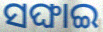
ସଙ୍ଘାଇ